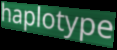
haplotype